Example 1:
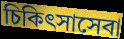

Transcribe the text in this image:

চিকিৎসাসেবা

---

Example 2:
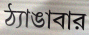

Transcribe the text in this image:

ঠ্যাঙাবার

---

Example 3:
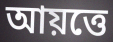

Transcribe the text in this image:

আয়ত্তে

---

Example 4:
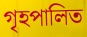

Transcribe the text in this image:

গৃহপালিত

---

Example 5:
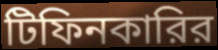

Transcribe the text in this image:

টিফিনকারির